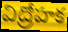
విద్రోహక